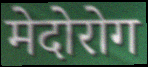
मेदोरोग